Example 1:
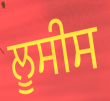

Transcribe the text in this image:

ਲੂਸੀਸ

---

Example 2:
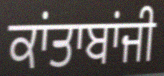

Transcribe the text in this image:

ਕਾਂਤਾਬਾਂਜੀ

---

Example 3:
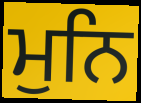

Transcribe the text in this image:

ਮੁਨਿ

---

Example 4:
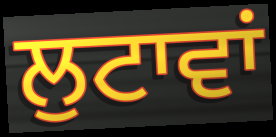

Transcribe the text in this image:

ਲੁਟਾਵਾਂ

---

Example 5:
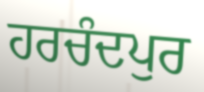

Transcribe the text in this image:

ਹਰਚੰਦਪੁਰ